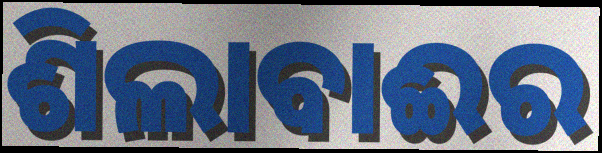
ଶିଲାବାଈର